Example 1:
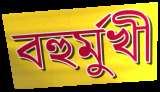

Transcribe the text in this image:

বহুর্মুখী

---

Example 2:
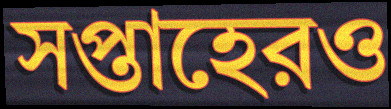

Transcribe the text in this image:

সপ্তাহেরও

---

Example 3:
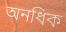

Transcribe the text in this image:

অনধিক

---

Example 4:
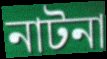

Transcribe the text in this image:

নাটনা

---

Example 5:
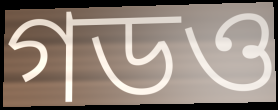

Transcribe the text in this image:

গডও